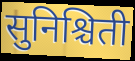
सुनिश्चिती